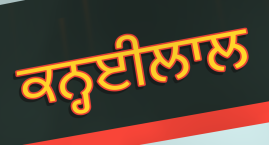
ਕਨ੍ਹਈਲਾਲ